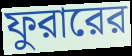
ফুরারের